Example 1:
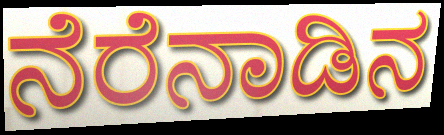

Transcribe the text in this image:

ನೆರೆನಾಡಿನ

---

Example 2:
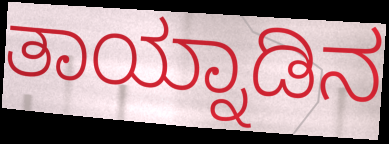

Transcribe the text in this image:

ತಾಯ್ನಾಡಿನ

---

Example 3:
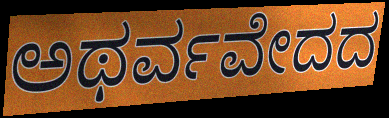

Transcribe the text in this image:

ಅಥರ್ವವೇದದ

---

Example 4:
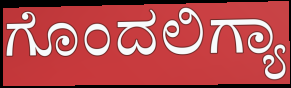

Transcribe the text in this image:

ಗೊಂದಲಿಗ್ಯಾ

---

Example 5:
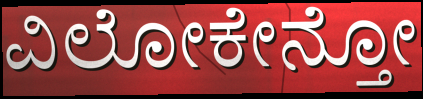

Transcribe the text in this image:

ವಿಲೋಕೇನ್ತೋ